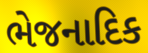
ભેજનાદિક